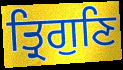
ਤ੍ਰਿਗੁਣਿ